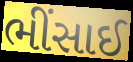
ભીંસાઈ